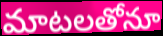
మాటలతోనూ